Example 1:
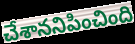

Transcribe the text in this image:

చేశాననిపించింది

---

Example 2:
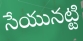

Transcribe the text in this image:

సేయునట్టి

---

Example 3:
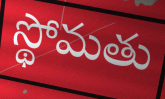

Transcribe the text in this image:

స్థోమతు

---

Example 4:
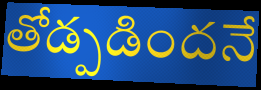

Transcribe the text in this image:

తోడ్పడిందనే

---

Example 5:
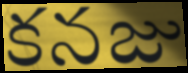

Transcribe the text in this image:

కనజు